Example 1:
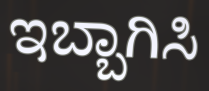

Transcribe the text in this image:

ಇಬ್ಬಾಗಿಸಿ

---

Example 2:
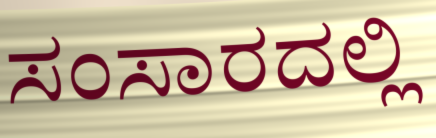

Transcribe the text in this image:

ಸಂಸಾರದಲ್ಲಿ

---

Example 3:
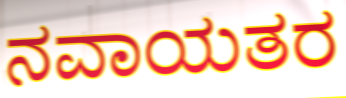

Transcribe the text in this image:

ನವಾಯತರ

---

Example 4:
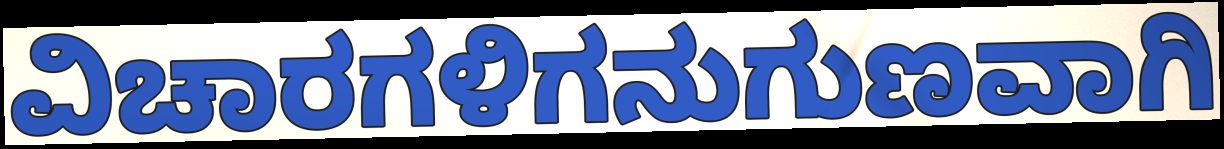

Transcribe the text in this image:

ವಿಚಾರಗಳಿಗನುಗುಣವಾಗಿ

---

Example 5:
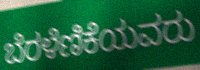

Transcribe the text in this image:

ಬೆರಳೆಣಿಕೆಯವರು